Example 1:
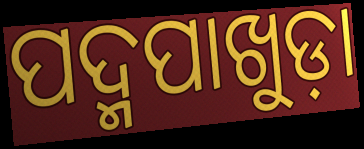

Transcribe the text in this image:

ପଦ୍ମପାଖୁଡ଼ା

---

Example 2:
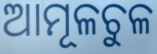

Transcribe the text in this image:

ଆମୂଳଚୁଳ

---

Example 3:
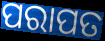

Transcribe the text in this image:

ପରାପତ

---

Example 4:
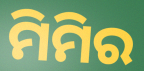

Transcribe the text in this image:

ମିମିର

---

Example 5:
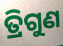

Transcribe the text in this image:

ତ୍ରିଗୁଣ